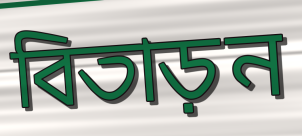
বিতাড়ন